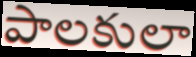
పాలకులా